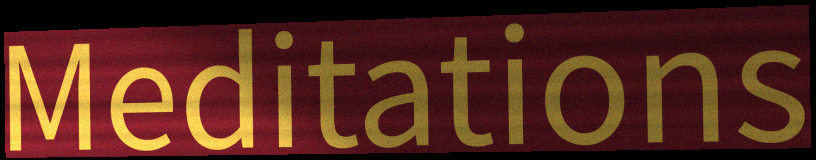
Meditations